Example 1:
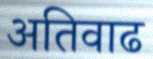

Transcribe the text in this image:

अतिवाढ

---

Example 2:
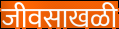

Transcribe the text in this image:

जीवसाखळी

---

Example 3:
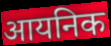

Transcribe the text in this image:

आयनिक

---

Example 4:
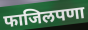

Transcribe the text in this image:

फाजिलपणा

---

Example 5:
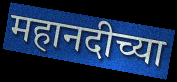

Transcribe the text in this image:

महानदीच्या